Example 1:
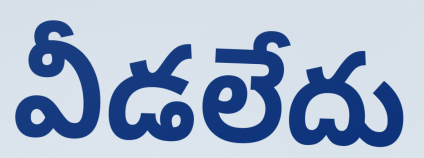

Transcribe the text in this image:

వీడలేదు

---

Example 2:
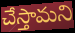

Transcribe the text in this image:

చేస్తామని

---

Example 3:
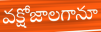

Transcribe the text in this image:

వక్షోజాలగానూ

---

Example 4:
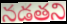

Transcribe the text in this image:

నడతని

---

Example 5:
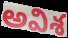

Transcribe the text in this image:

అవిశ